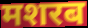
मशरब